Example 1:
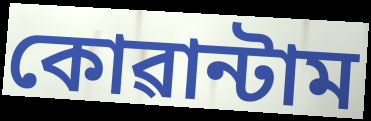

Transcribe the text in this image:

কোৱান্টাম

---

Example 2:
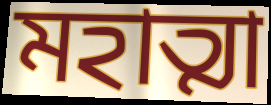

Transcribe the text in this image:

মহাত্মা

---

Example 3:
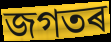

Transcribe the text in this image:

জগতৰ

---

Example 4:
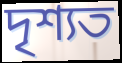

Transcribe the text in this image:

দৃশ্যত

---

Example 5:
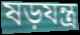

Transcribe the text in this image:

ষড়যন্ত্ৰ